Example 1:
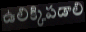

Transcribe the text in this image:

ఉలిక్కిపడాలి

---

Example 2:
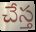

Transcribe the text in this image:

చేస్త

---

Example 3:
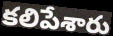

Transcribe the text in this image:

కలిపేశారు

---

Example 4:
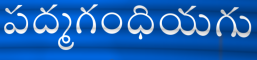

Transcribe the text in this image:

పద్మగంధియగు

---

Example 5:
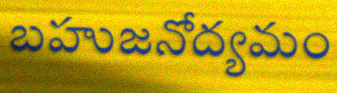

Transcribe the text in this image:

బహుజనోద్యమం